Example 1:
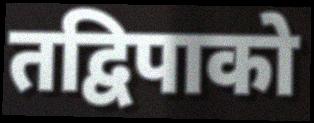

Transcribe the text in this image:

तद्विपाको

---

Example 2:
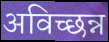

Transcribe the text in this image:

अविच्छन्न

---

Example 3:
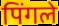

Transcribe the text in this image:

पिंगले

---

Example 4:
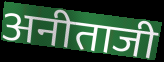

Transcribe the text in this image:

अनीताजी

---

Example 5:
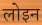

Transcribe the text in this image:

लोइन